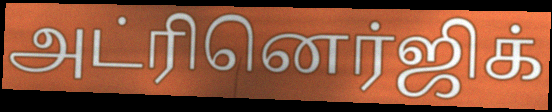
அட்ரினெர்ஜிக்